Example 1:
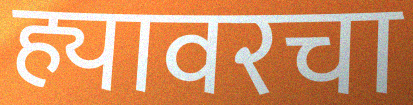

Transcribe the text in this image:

ह्यावरचा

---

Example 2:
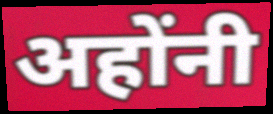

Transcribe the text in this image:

अहोंनी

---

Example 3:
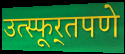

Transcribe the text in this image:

उत्स्फूर्तपणे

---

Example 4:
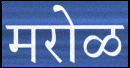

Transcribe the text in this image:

मरोळ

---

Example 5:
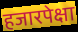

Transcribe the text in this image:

हजारपेक्षा